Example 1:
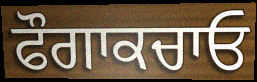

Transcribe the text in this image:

ਫੌਗਾਕਚਾਓ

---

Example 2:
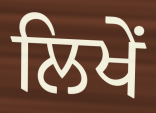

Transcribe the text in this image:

ਲਿਖੇਂ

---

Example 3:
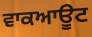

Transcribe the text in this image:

ਵਾਕਆਊਟ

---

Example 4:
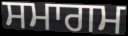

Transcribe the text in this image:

ਸਮਾਗਮ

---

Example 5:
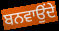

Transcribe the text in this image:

ਬਨਵਾਉਂਦੇ